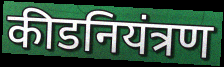
कीडनियंत्रण